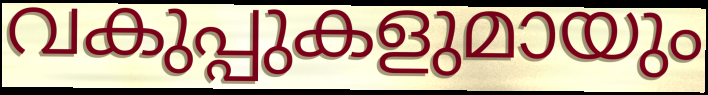
വകുപ്പുകളുമായും